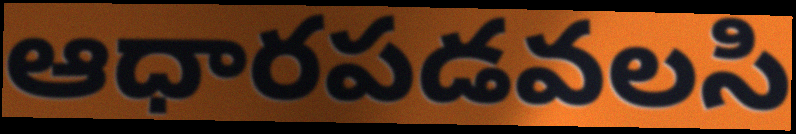
ఆధారపడవలసి